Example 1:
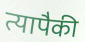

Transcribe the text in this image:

त्यापैकी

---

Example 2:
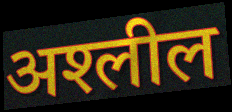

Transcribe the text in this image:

अश्लील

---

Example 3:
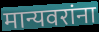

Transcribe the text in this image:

मान्यवरांना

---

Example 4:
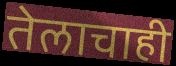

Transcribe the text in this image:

तेलाचाही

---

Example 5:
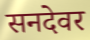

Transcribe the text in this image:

सनदेवर